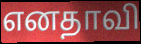
எனதாவி